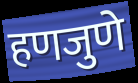
हणजुणे